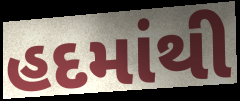
હદમાંથી